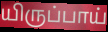
யிருப்பாய்